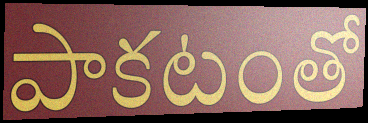
పాకటంతో